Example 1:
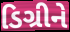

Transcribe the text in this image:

ડિગ્રીને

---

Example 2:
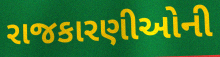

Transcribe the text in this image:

રાજકારણીઓની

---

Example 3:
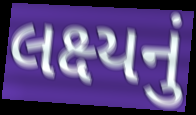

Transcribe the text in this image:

લક્ષ્યનું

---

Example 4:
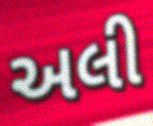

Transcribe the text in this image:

અલી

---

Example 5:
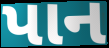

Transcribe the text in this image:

પાન